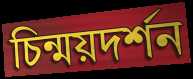
চিন্ময়দর্শন